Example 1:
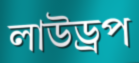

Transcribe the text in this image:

লাউড্রপ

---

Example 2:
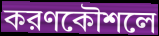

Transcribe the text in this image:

করণকৌশলে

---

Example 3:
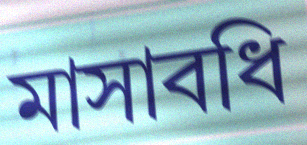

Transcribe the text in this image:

মাসাবধি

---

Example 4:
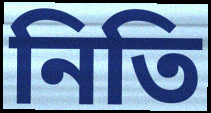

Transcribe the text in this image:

নিতি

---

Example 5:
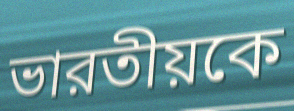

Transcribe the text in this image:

ভারতীয়কে